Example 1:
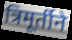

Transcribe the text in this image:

त्रिमूर्तीने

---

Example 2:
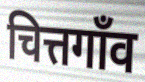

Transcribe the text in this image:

चित्तगाँव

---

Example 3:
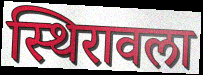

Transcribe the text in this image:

स्थिरावला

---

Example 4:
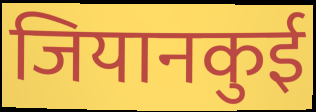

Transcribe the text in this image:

जियानकुई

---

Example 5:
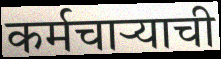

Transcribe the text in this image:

कर्मचाऱ्याची